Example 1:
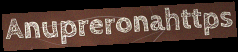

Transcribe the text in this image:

Anupreronahttps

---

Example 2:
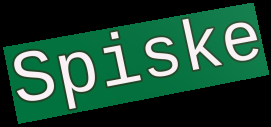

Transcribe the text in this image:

Spiske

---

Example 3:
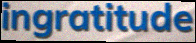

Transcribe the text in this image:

ingratitude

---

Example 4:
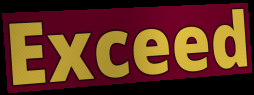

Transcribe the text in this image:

Exceed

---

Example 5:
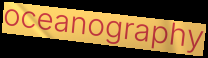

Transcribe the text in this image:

oceanography